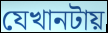
যেখানটায়